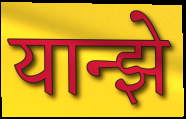
यान्झे